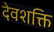
देवशक्ति